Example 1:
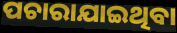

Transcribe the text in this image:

ପଚାରାଯାଇଥିବା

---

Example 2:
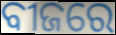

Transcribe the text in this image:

ବୀଜରେ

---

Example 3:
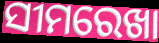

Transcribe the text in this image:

ସୀମରେଖା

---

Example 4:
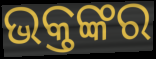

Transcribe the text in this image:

ଭକ୍ତଙ୍କର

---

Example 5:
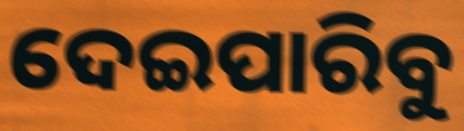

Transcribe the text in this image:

ଦେଇପାରିବୁ